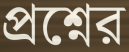
প্রশ্নের